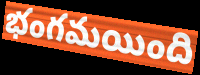
భంగమయింది